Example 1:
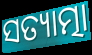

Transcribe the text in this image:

ସତ୍ୟାତ୍ମା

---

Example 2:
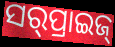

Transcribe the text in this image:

ସର୍‌ପ୍ରାଇଜ୍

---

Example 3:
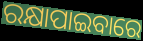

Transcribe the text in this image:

ରକ୍ଷାପାଇବାରେ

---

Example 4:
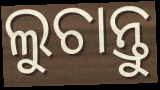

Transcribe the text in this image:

ଲୁଚାନ୍ତୁ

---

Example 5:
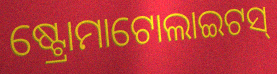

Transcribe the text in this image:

ଷ୍ଟ୍ରୋମାଟୋଲାଇଟସ୍